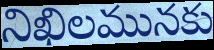
నిఖిలమునకు